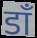
डॉँ